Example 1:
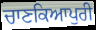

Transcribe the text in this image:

ਚਾਣਕਿਆਪੁਰੀ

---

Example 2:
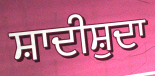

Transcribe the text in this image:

ਸ਼ਾਦੀਸ਼ੁਦਾ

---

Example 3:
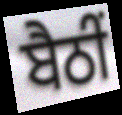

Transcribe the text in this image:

ਬੈਠੀਂ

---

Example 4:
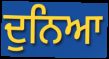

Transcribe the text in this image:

ਦੁਨਿਆ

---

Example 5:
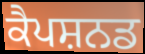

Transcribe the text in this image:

ਕੈਪਸ਼ਨਡ